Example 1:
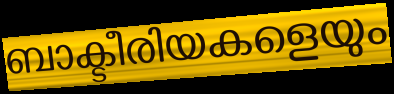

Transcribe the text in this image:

ബാക്ടീരിയകളെയും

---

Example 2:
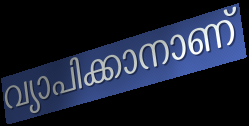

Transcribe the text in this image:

വ്യാപിക്കാനാണ്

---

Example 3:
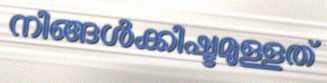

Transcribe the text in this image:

നിങ്ങൾക്കിഷ്ടമുള്ളത്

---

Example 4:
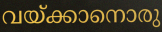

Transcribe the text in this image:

വയ്ക്കാനൊരു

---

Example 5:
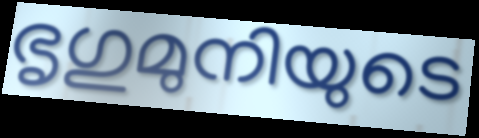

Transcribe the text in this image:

ഭൃഗുമുനിയുടെ